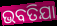
ଭବତିଯା